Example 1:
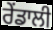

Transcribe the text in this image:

ਰੇਂਡਾਲੀ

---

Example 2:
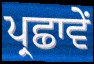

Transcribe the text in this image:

ਪ੍ਰਛਾਵੇਂ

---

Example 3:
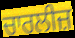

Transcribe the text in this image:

ਚਾਰਲੀਜ਼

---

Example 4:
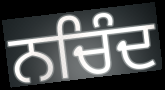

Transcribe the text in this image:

ਨਚਿੰਦ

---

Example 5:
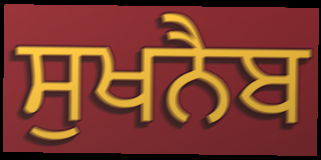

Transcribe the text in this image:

ਸੁਖਨੈਬ